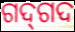
ଗଦ୍‍ଗଦ